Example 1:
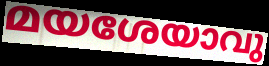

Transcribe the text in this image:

മയശേയാവു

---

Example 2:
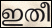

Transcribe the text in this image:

ഇതീ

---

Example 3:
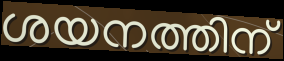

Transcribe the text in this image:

ശയനത്തിന്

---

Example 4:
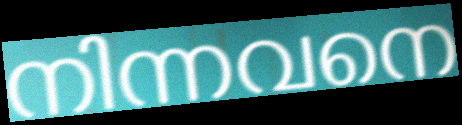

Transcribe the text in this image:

നിന്നവനെ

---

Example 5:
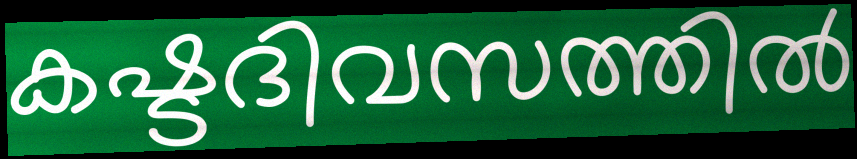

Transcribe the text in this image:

കഷ്ടദിവസത്തിൽ